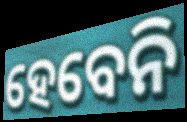
ହେବେନି